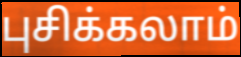
புசிக்கலாம்